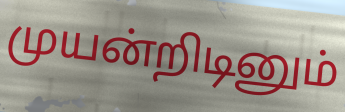
முயன்றிடினும்